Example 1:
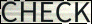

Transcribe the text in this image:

CHECK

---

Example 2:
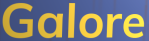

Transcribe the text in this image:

Galore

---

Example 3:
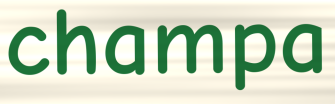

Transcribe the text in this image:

champa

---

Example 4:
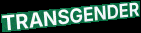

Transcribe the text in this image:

TRANSGENDER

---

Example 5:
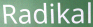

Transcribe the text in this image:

Radikal